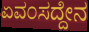
ಏವಂಸದ್ದೇನ